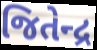
જિતેન્દ્ર